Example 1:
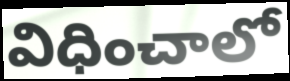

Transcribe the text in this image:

విధించాలో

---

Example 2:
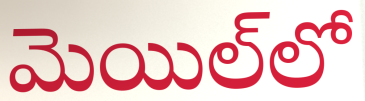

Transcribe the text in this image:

మెయిల్‌లో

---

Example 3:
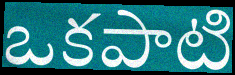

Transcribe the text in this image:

ఒకపాటి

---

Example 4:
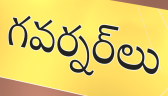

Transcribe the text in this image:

గవర్నర్‌లు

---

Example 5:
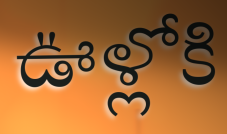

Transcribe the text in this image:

ఊళ్లోకి